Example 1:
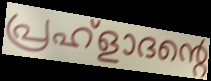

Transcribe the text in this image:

പ്രഹ്ളാദന്റെ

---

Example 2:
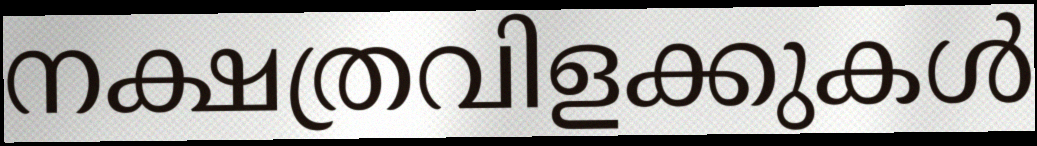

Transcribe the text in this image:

നക്ഷത്രവിളക്കുകൾ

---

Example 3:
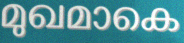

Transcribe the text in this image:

മുഖമാകെ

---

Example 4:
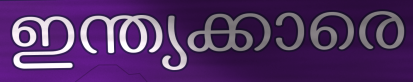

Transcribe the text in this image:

ഇന്ത്യക്കാരെ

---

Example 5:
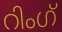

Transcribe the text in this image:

റിംഗ്